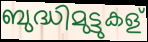
ബുദ്ധിമുട്ടുകള്